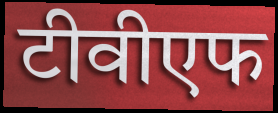
टीवीएफ